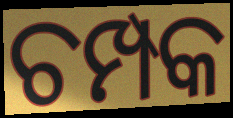
ଚମ୍ପକ